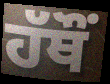
ਹੱਥੌਂ